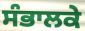
ਸੰਭਾਲਕੇ